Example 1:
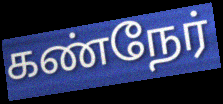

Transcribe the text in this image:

கண்நேர்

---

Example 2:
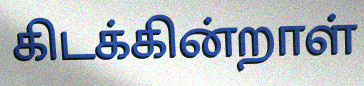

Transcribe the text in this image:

கிடக்கின்றாள்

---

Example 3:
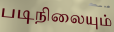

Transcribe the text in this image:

படிநிலையும்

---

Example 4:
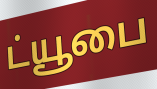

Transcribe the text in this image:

ட்யூபை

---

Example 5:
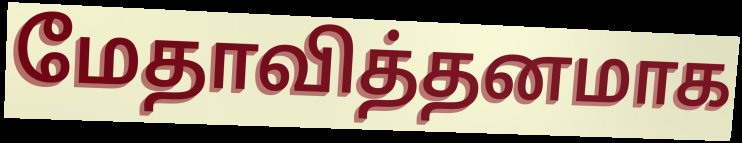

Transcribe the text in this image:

மேதாவித்தனமாக